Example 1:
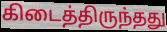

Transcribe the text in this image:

கிடைத்திருந்தது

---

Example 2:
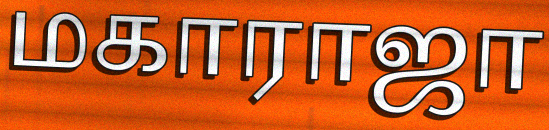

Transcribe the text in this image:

மகாராஜா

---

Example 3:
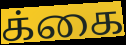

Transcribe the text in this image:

க்கை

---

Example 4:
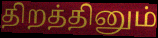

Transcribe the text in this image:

திறத்தினும்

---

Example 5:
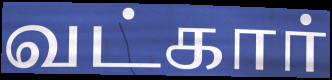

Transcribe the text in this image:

வட்கார்